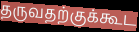
தருவதற்குக்கூட